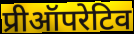
प्रीऑपरेटिव